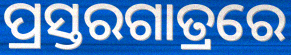
ପ୍ରସ୍ତରଗାତ୍ରରେ